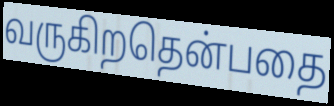
வருகிறதென்பதை